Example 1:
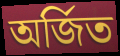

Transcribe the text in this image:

অর্জিত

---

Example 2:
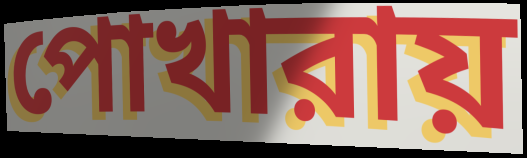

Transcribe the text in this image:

পোখারায়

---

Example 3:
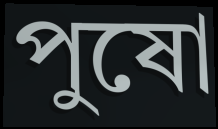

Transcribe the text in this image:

পুষো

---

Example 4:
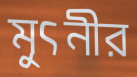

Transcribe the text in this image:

মুৎনীর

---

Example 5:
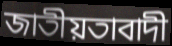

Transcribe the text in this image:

জাতীয়তাবাদী